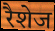
रैशेज